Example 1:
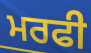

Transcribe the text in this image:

ਮਰਫੀ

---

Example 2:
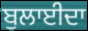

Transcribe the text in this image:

ਬੁਲਾਈਦਾ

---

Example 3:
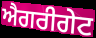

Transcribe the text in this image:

ਐਗਰੀਗੇਟ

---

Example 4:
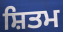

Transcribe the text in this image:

ਸ਼ਿਤਮ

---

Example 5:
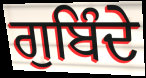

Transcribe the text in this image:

ਗੁਬਿੰਦੇ